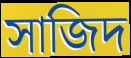
সাজিদ